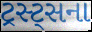
ટ્રસ્ટ્સના